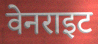
वेनराइट